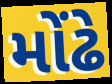
મોંઢે